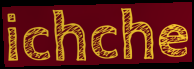
ichche